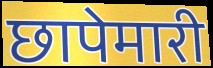
छापेमारी